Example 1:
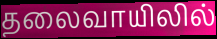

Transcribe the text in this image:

தலைவாயிலில்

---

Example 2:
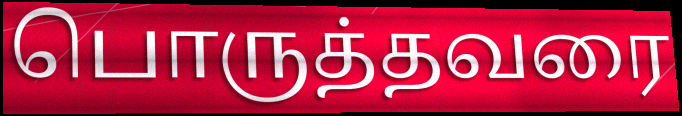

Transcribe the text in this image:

பொருத்தவரை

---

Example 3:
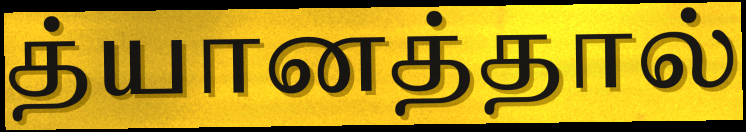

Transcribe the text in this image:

த்யானத்தால்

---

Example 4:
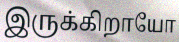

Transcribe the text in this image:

இருக்கிறாயோ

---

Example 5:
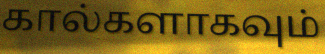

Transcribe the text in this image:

கால்களாகவும்